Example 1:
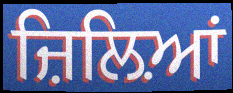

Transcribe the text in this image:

ਜ਼ਿਲ਼ਿਆਂ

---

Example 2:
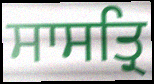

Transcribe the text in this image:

ਸਾਸਤ੍ਰਿ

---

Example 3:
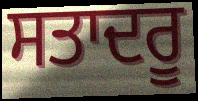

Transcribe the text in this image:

ਸਤਾਦਰੂ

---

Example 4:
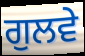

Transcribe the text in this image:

ਗੁਲਵੇ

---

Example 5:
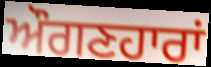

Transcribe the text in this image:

ਔਗਣਹਾਰਾਂ